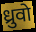
ध्रुवो